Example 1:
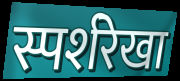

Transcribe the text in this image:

स्पर्शरेखा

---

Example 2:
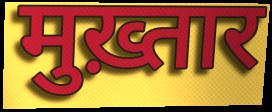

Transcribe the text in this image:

मुख़्तार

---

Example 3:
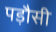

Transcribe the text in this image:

पड़ौसी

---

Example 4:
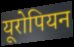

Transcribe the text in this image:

यूरोपियन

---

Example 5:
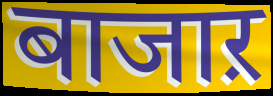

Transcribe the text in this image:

बाजाऱ